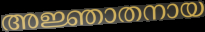
അജ്ഞാതനായ